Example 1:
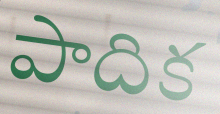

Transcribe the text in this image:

పాదిక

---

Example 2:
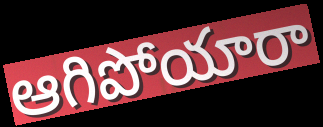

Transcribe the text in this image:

ఆగిపోయారా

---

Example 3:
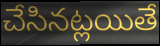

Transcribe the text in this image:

చేసినట్లయితే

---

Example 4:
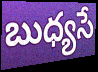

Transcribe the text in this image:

బుధ్యసే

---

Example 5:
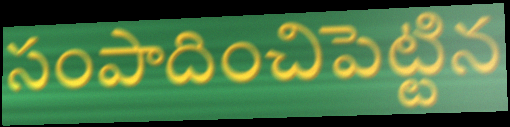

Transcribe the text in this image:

సంపాదించిపెట్టిన